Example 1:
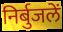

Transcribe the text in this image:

निर्बुजलें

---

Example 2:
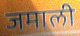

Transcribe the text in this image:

जमाली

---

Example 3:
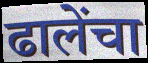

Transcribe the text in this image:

ढालेंचा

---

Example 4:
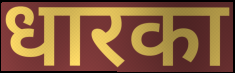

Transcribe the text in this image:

धारका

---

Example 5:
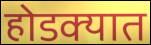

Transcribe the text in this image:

होडक्यात